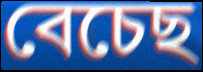
বেচেছ